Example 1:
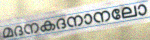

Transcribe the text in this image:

മദനകദനാനലോ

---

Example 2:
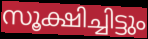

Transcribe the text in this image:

സൂക്ഷിച്ചിട്ടും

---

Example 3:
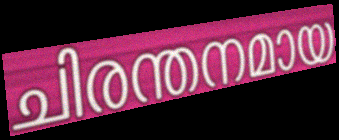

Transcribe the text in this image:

ചിരന്തനമായ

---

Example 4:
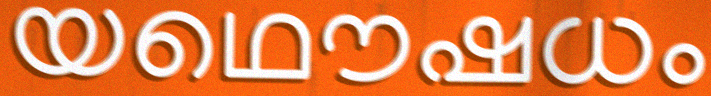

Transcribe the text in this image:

യഥൌഷധം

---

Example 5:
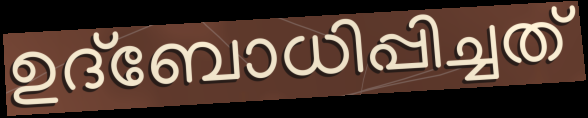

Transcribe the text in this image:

ഉദ്ബോധിപ്പിച്ചത്